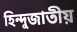
হিন্দুজাতীয়